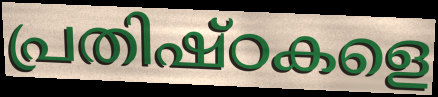
പ്രതിഷ്ഠകളെ